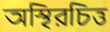
অস্থিরচিত্ত